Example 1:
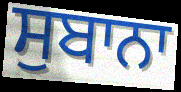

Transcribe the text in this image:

ਸੁਬਾਨਾ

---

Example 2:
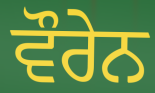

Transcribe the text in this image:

ਵੌਰੇਨ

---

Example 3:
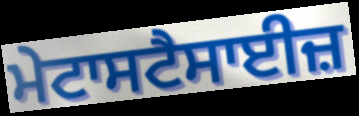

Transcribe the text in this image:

ਮੇਟਾਸਟੈਸਾਈਜ਼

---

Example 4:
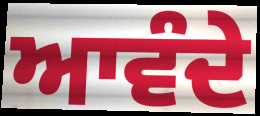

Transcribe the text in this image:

ਆਵੰਦੇ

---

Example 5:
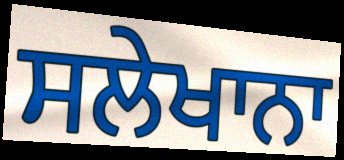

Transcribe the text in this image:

ਸਲੇਖਾਨਾ